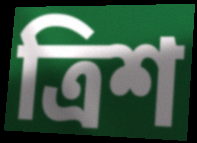
ত্ৰিশ